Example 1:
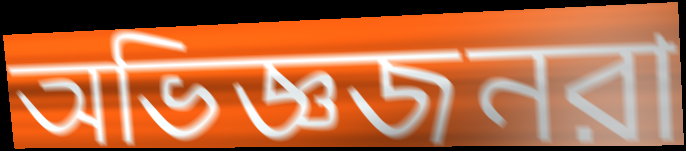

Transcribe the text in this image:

অভিজ্ঞজনরা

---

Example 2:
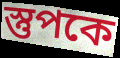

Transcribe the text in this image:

স্তুপকে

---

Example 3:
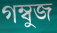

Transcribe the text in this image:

গম্বুজ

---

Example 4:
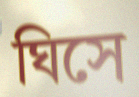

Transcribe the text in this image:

ঘিসে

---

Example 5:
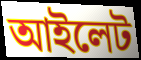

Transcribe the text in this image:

আইলেট